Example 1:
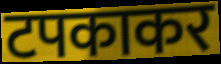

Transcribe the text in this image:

टपकाकर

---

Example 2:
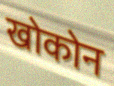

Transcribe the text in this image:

खोकोन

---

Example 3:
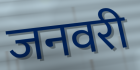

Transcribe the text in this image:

जनवरी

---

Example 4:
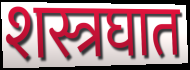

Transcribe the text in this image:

शस्त्रघात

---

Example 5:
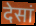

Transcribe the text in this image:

देसां